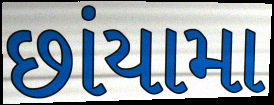
છાંયામા